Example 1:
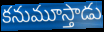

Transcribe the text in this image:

కనుమూస్తాడు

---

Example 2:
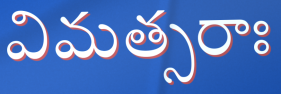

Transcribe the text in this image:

విమత్సరాః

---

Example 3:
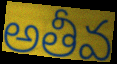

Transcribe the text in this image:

అతీవ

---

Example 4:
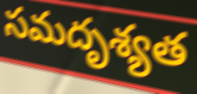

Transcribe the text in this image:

సమదృశ్యత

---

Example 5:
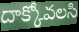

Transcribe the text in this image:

దాక్కోవలసి